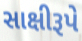
સાક્ષીરૂપે